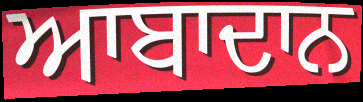
ਆਬਾਦਾਨ